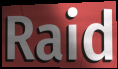
Raid